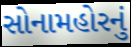
સોનામહોરનું